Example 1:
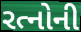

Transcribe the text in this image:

રત્નોની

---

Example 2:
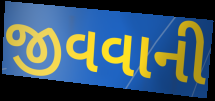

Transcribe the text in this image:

જીવવાની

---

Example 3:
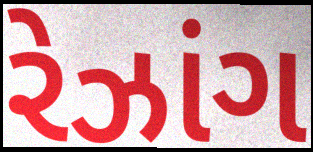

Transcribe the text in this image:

રેઝાંગ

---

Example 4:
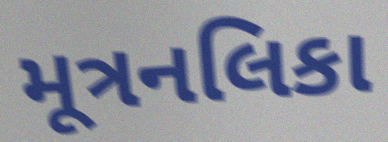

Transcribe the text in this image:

મૂત્રનલિકા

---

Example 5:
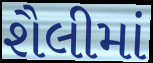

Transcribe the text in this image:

શૈલીમાં